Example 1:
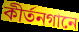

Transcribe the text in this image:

কীর্তনগানে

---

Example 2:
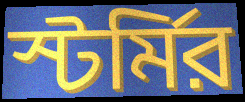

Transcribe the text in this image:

স্টর্মির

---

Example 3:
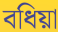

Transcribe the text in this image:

বধিয়া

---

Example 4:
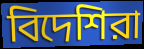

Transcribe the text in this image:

বিদেশিরা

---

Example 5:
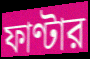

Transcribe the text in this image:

ফাণ্টার